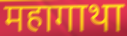
महागाथा